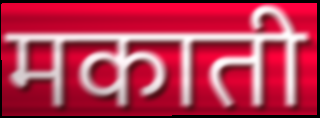
मकाती